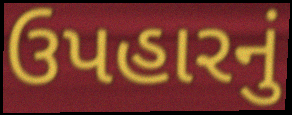
ઉપહારનું